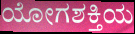
ಯೋಗಶಕ್ತಿಯ